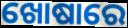
ଖୋଷାରେ